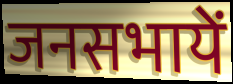
जनसभायें